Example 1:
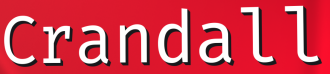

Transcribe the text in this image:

Crandall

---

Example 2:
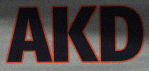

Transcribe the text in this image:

AKD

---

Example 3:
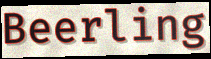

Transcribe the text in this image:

Beerling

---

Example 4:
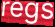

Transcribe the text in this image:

regs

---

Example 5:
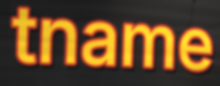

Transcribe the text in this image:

tname